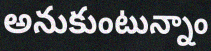
అనుకుంటున్నాం